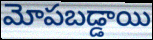
మోపబడ్డాయి